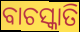
ବାଚସ୍କାତି